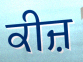
ਕੀਜ਼